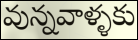
వున్నవాళ్ళకు